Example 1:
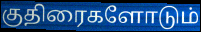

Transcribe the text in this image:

குதிரைகளோடும்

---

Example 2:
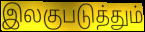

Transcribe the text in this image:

இலகுபடுத்தும்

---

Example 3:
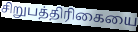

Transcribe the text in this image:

சிறுபத்திரிகையை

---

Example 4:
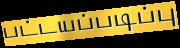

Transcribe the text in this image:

பட்டயப்படிப்பு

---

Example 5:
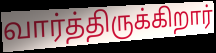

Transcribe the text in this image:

வார்த்திருக்கிறார்